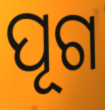
ପୂଗ